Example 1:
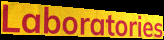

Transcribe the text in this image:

Laboratories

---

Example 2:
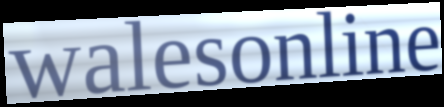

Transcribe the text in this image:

walesonline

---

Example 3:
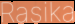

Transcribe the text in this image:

Rasika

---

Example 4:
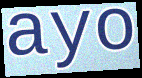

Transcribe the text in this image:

ayo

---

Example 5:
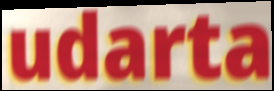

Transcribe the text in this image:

udarta